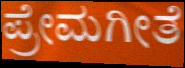
ಪ್ರೇಮಗೀತೆ